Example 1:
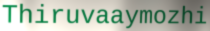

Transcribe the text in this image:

Thiruvaaymozhi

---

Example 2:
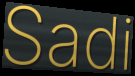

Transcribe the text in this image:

Sadi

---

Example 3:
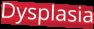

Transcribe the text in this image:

Dysplasia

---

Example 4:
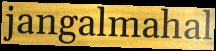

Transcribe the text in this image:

jangalmahal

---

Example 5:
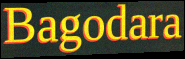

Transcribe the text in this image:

Bagodara